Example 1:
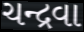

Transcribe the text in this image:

ચન્દ્રવા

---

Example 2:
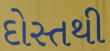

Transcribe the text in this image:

દોસ્તથી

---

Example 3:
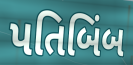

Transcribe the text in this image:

પતિબિંબ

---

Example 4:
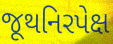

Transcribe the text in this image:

જૂથનિરપેક્ષ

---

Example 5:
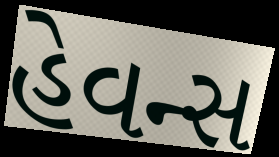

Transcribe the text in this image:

હેવન્સ